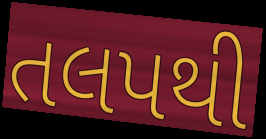
તલપથી